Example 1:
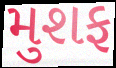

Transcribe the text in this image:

મુશફ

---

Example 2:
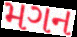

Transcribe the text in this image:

મગન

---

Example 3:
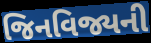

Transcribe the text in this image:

જિનવિજ્યની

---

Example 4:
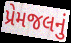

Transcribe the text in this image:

પ્રેમજલનું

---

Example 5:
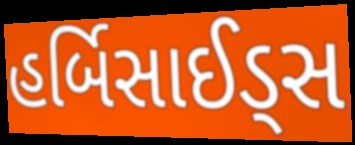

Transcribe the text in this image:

હર્બિસાઈડ્સ